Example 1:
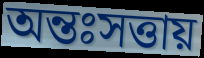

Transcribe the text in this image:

অন্তঃসত্তায়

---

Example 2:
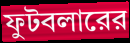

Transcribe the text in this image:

ফুটবলারের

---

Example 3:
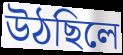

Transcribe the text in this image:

উঠছিলে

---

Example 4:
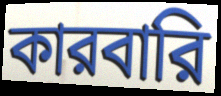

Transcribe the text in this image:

কারবারি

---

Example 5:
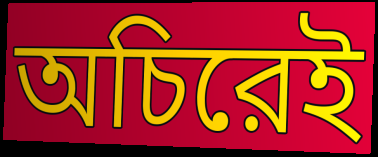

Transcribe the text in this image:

অচিরেই